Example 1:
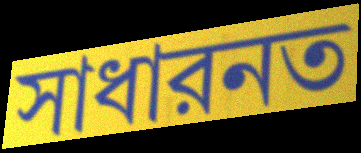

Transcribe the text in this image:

সাধারনত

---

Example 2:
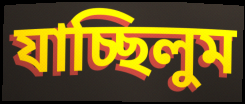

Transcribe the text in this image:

যাচ্ছিলুম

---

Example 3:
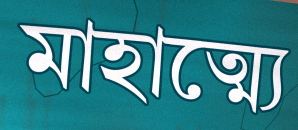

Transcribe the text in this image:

মাহাত্ম্যে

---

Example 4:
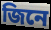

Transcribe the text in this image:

জিনে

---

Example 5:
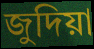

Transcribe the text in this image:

জুদিয়া